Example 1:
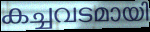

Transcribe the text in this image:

കച്ചവടമായി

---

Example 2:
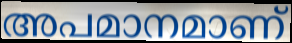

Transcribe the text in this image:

അപമാനമാണ്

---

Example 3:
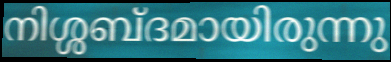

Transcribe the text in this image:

നിശ്ശബ്ദമായിരുന്നു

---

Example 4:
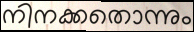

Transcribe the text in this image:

നിനക്കതൊന്നും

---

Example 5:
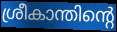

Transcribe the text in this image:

ശ്രീകാന്തിന്റെ